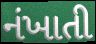
નંખાતી